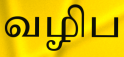
வழிப